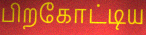
பிறகோட்டிய